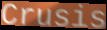
Crusis